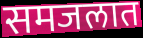
समजलात